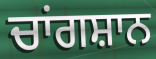
ਚਾਂਗਸ਼ਾਨ